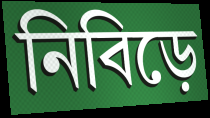
নিবিড়ে